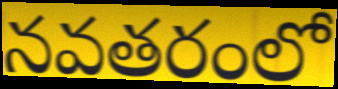
నవతరంలో